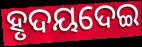
ହୃଦୟଦେଇ